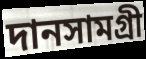
দানসামগ্রী